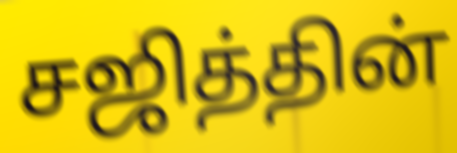
சஜித்தின்